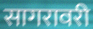
सागरावरी